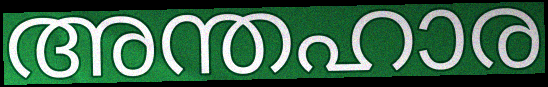
അന്തഹാര